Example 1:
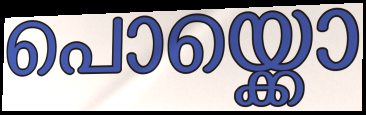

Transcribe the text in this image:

പൊയ്ക്കൊ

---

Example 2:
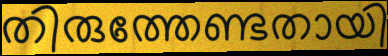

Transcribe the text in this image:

തിരുത്തേണ്ടതായി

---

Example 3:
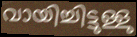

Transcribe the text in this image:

വായിച്ചിട്ടുള്ളു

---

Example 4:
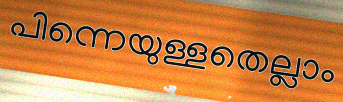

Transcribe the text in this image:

പിന്നെയുള്ളതെല്ലാം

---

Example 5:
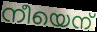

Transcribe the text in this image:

നീയെന്